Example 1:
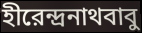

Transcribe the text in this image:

হীরেন্দ্রনাথবাবু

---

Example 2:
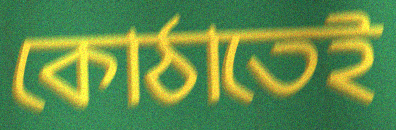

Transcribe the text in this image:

কোঠাতেই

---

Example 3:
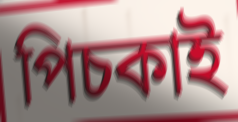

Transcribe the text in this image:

পিচকাই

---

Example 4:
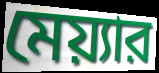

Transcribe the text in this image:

মেয়্যার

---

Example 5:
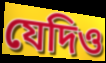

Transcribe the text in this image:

যেদিও